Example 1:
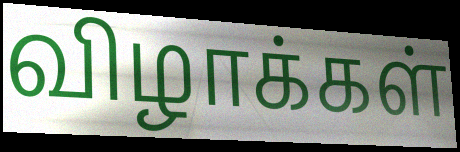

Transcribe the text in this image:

விழாக்கள்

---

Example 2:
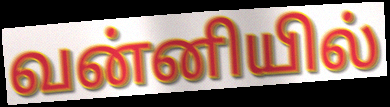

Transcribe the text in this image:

வன்னியில்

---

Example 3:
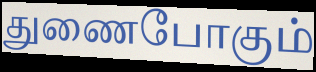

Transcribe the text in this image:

துணைபோகும்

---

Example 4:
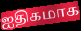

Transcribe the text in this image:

ஐதிகமாக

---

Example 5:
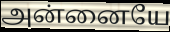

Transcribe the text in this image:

அன்னையே